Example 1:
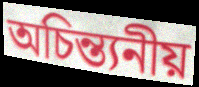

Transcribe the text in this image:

অচিন্ত্যনীয়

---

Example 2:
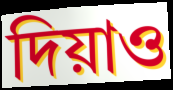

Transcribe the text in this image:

দিয়াও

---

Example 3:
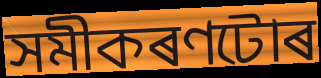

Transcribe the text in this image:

সমীকৰণটোৰ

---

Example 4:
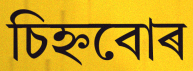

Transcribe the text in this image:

চিহ্নবোৰ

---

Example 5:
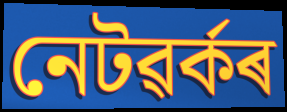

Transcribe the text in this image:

নেটৱৰ্কৰ